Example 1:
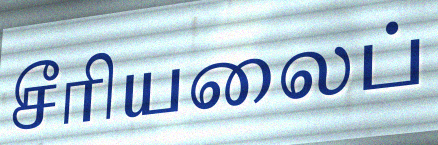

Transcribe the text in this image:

சீரியலைப்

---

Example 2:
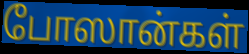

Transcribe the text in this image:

போஸான்கள்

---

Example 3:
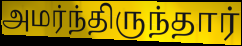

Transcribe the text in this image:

அமர்ந்திருந்தார்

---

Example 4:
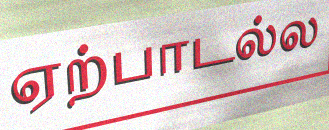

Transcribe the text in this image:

ஏற்பாடல்ல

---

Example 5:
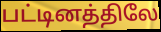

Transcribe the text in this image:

பட்டினத்திலே